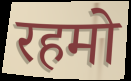
रहमो